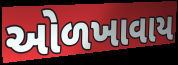
ઓળખાવાય